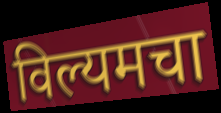
विल्यमचा